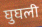
घुघली